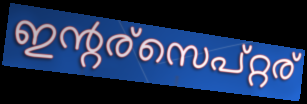
ഇന്റര്സെപ്റ്റര്